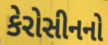
કેરોસીનનો